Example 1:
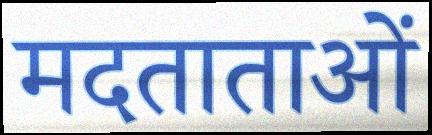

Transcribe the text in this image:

मदताताओं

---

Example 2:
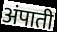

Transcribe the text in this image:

अंपाती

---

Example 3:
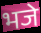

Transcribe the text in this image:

भजे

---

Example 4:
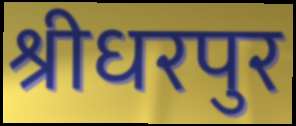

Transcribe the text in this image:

श्रीधरपुर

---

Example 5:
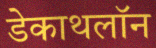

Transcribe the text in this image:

डेकाथलॉन